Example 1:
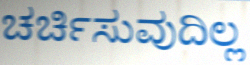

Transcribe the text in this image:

ಚರ್ಚಿಸುವುದಿಲ್ಲ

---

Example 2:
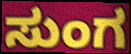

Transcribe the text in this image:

ಸುಂಗ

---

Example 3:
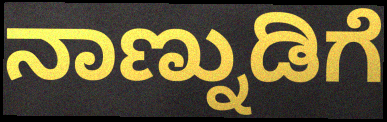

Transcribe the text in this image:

ನಾಣ್ನುಡಿಗೆ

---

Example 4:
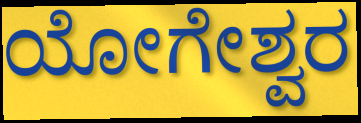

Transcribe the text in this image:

ಯೋಗೇಶ್ವರ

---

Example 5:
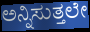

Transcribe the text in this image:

ಅನ್ನಿಸುತ್ತಲೇ